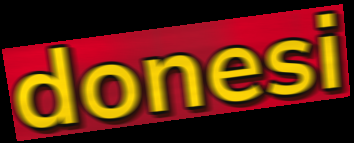
donesi